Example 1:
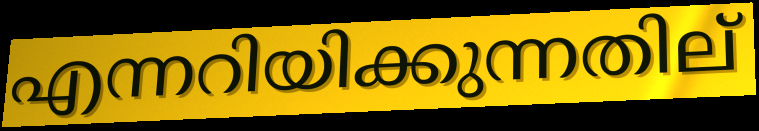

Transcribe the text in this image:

എന്നറിയിക്കുന്നതില്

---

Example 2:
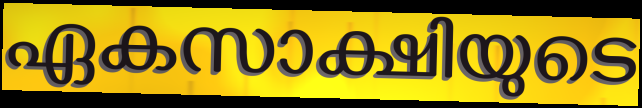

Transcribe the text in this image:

ഏകസാക്ഷിയുടെ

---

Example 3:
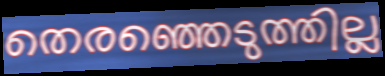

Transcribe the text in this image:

തെരഞ്ഞെടുത്തില്ല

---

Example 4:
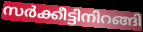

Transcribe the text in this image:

സർക്കീട്ടിനിറങ്ങി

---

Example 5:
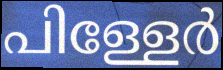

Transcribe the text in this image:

പിള്ളേർ